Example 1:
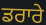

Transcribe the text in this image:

ਡਰਾਰੇ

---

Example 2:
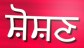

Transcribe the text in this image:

ਸ਼ੋਸ਼ਣ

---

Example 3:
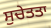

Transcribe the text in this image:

ਸੁਚੇਤਤਾ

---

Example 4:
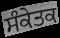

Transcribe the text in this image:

ਸੰਕੇਤਕ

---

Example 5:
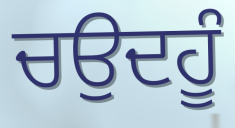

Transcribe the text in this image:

ਚਉਦਹੂੰ